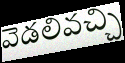
వెడలివచ్చి